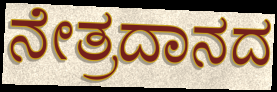
ನೇತ್ರದಾನದ